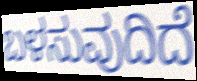
ಬಳಸುವುದಿದೆ